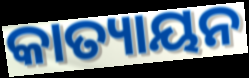
କାତ୍ୟାୟନ